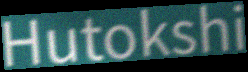
Hutokshi